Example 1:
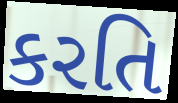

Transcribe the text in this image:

કરતિ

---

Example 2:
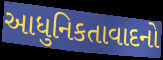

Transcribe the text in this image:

આધુનિકતાવાદનો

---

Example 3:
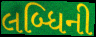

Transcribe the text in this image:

લબ્ધિની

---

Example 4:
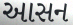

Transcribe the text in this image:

આસન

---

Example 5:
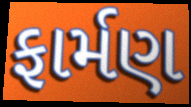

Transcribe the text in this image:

ફાર્મણ